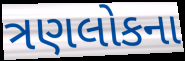
ત્રણલોકના